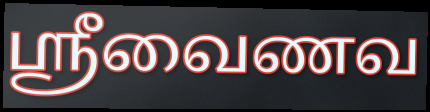
ஸ்ரீவைணவ